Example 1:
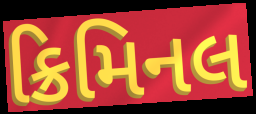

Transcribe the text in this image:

ક્રિમિનલ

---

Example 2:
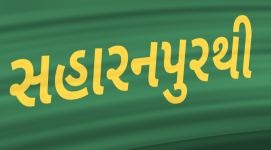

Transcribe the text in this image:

સહારનપુરથી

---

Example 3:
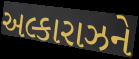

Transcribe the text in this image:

અલ્કારાઝને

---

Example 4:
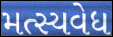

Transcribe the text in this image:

મત્સ્યવેધ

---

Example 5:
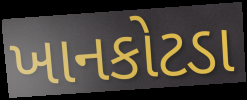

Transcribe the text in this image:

ખાનકોટડા